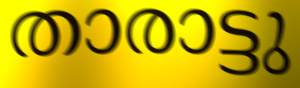
താരാട്ടു